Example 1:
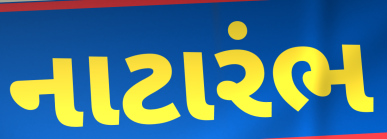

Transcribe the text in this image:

નાટારંભ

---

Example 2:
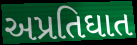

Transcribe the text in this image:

અપ્રતિઘાત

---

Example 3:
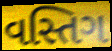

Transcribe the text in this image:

વસ્તિગ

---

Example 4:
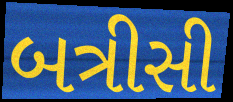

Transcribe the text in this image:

બત્રીસી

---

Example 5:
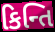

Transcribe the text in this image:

કિન્તિ